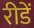
रीडें